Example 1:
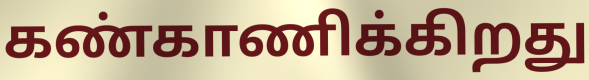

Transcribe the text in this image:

கண்காணிக்கிறது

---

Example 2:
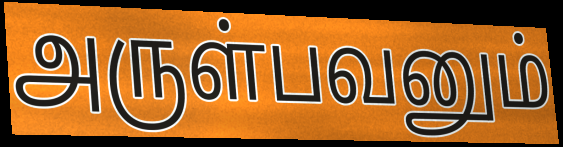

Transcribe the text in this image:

அருள்பவனும்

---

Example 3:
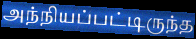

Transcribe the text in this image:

அந்நியப்பட்டிருந்த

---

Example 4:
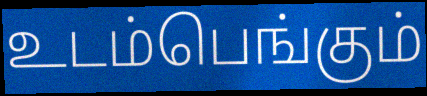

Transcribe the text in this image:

உடம்பெங்கும்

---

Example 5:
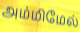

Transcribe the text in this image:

அம்மிமேல்